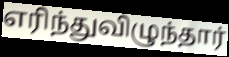
எரிந்துவிழுந்தார்